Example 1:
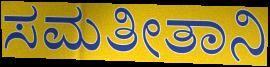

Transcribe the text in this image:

ಸಮತೀತಾನಿ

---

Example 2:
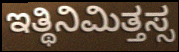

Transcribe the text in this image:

ಇತ್ಥಿನಿಮಿತ್ತಸ್ಸ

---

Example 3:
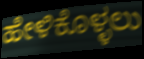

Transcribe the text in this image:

ಹೇಳಿಕೊಳ್ಳಲು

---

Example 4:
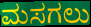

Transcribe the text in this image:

ಮಸಗಲು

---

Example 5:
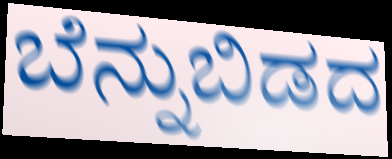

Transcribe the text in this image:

ಬೆನ್ನುಬಿಡದ